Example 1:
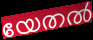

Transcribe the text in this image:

യേതൽ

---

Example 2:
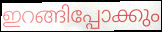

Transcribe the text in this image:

ഇറങ്ങിപ്പോക്കും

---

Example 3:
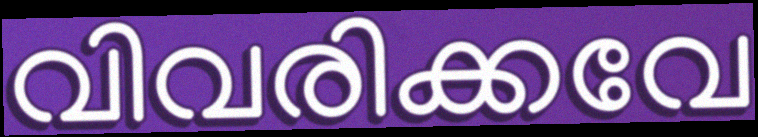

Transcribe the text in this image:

വിവരിക്കവേ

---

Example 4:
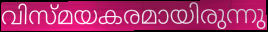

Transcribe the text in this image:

വിസ്മയകരമായിരുന്നു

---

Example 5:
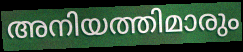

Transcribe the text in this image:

അനിയത്തിമാരും